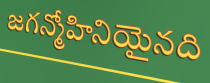
జగన్మోహినియైనది